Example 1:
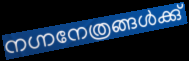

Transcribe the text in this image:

നഗ്നനേത്രങ്ങൾക്കു്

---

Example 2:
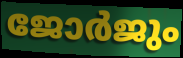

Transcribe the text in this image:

ജോർജും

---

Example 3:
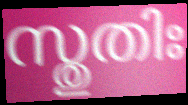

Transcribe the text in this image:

സ്തുതിഃ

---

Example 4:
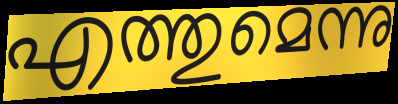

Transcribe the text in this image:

എത്തുമെന്നു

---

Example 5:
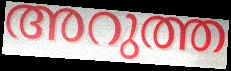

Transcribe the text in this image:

അറുത്ത